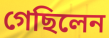
গেছিলেন